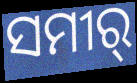
ସମୀର୍